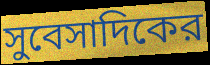
সুবেসাদিকের